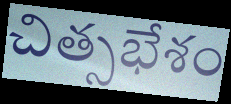
చిత్సభేశం